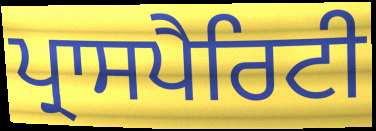
ਪ੍ਰਾਸਪੈਰਿਟੀ